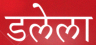
डलेला